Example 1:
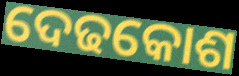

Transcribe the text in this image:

ଦେଢକୋଶ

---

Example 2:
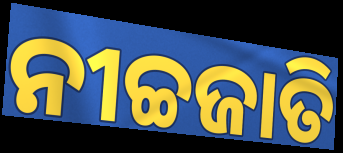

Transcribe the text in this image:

ନୀଚ୍ଚଜାତି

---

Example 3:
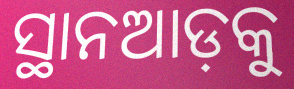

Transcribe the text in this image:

ସ୍ଥାନଆଡ଼କୁ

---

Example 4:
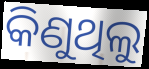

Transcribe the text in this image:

କିଣୁଥିଲୁ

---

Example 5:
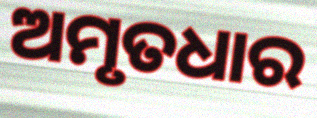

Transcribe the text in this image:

ଅମୃତଧାର